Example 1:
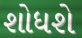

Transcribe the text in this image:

શોધશે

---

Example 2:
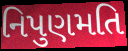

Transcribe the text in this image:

નિપુણમતિ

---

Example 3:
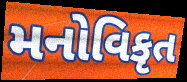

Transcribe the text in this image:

મનોવિકૃત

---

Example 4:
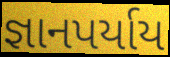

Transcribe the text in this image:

જ્ઞાનપર્યાય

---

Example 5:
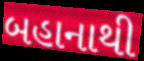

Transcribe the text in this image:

બહાનાથી